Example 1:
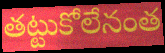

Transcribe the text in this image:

తట్టుకోలేనంత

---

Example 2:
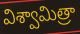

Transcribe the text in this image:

విశ్వామిత్రా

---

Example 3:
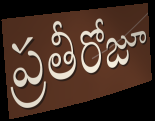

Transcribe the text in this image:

ప్రతీరోజూ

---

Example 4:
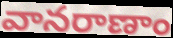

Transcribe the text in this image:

వానరాణాం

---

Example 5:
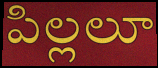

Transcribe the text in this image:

పిల్లలూ